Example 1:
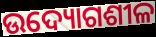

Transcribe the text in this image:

ଉଦ୍ୟୋଗଶୀଳ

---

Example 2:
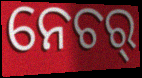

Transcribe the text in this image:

ନେଚର୍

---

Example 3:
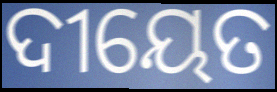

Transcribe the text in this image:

ଦୀୟେତ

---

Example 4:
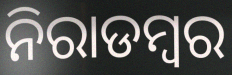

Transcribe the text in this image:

ନିରାଡମ୍ବର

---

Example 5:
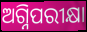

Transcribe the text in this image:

ଅଗ୍ନିପରୀକ୍ଷା